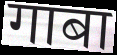
गाबा